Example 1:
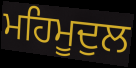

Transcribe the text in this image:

ਮਹਿਮੂਦੁਲ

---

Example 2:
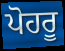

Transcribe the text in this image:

ਪੋਹਰੂ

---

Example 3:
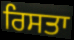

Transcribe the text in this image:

ਰਿਸਤਾ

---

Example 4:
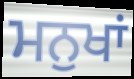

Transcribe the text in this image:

ਮਨੁਖਾਂ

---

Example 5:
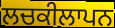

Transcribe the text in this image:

ਲਚਕੀਲਾਪਨ